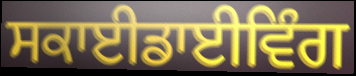
ਸਕਾਈਡਾਈਵਿੰਗ